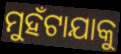
ମୁହଁଟାଯାକୁ